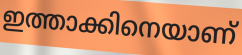
ഇത്താക്കിനെയാണ്